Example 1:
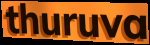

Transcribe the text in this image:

thuruva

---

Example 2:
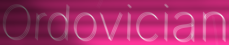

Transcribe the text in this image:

Ordovician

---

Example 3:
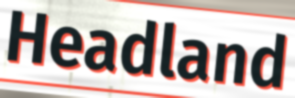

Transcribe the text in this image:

Headland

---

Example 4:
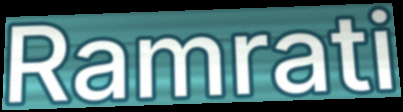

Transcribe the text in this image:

Ramrati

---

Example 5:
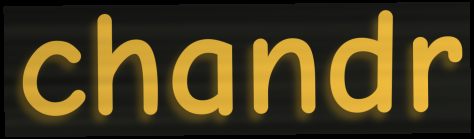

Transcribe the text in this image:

chandr